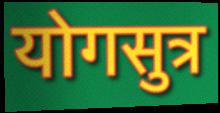
योगसुत्र